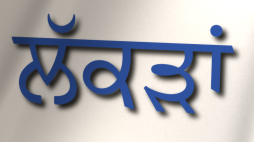
ਲੱਕੜਾਂ